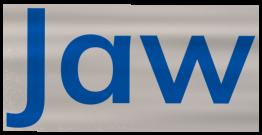
Jaw